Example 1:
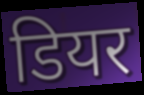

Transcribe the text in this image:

डियर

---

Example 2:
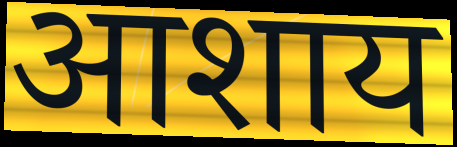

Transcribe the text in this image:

आशाय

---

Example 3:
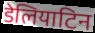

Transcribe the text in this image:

डेलियाटिन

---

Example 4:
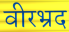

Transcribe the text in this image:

वीरभ्रद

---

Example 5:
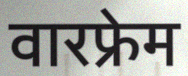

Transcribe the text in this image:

वारफ्रेम